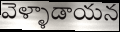
వెళ్ళాడాయన